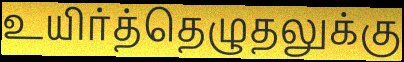
உயிர்த்தெழுதலுக்கு